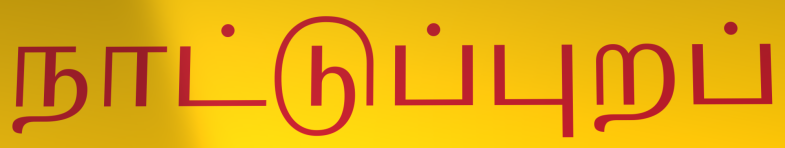
நாட்டுப்புறப்